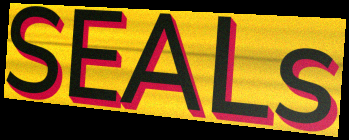
SEALs